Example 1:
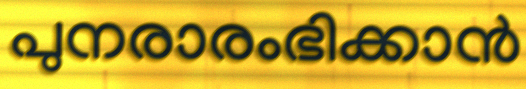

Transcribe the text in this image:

പുനരാരംഭിക്കാൻ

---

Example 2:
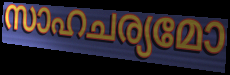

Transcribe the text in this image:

സാഹചര്യമോ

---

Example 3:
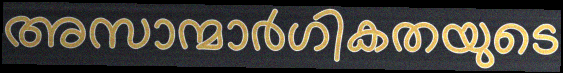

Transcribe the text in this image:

അസാന്മാർഗികതയുടെ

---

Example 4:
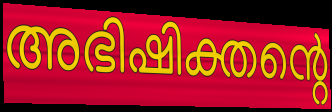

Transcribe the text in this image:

അഭിഷിക്തന്റെ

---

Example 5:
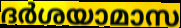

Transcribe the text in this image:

ദർശയാമാസ